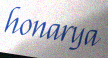
honarya